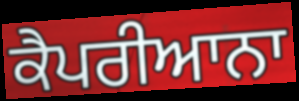
ਕੈਪਰੀਆਨਾ